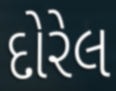
દોરેલ